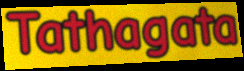
Tathagata